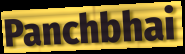
Panchbhai